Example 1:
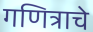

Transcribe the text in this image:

गणित्राचे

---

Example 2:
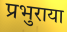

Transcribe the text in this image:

प्रभुराया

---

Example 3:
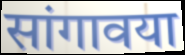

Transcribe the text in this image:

सांगावया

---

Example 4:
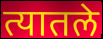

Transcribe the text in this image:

त्‍यातले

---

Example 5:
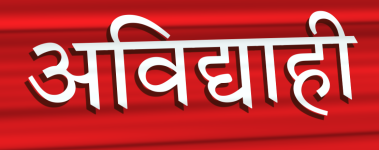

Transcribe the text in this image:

अविद्याही